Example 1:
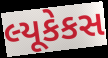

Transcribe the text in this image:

લ્યૂકેકસ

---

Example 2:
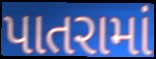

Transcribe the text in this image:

પાતરામાં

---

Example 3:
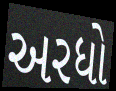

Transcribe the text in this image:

અરધો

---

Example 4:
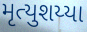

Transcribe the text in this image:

મૃત્યુશય્યા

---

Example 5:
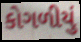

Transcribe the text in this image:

કોગળીયું